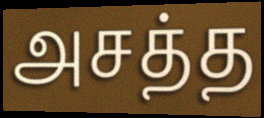
அசத்த